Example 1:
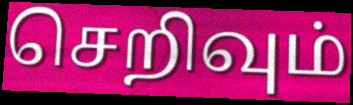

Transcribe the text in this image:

செறிவும்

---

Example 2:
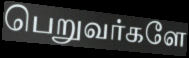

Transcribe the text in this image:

பெறுவர்களே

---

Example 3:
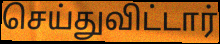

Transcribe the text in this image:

செய்துவிட்டார்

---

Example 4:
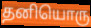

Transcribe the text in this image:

தனியொரு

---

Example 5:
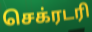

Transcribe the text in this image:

செக்ரடரி